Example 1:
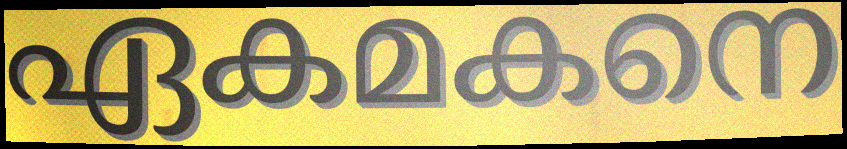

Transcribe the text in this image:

ഏകമകനെ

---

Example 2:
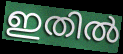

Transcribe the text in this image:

ഇതിൽ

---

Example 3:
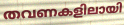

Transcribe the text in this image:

തവണകളിലായി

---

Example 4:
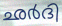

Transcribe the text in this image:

ഛർദി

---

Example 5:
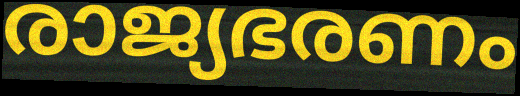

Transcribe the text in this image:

രാജ്യഭരണം